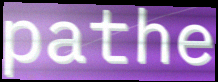
pathe